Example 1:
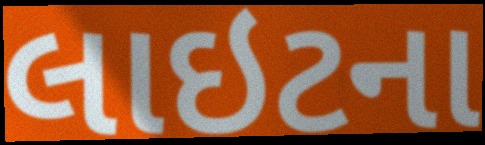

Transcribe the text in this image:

લાઇટના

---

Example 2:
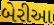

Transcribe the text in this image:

બેરીઆ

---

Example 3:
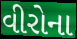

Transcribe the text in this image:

વીરોના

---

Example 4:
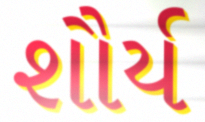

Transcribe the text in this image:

શૌર્ય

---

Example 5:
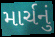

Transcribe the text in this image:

માર્ચનું